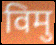
विमु